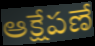
ఆక్షేపణే